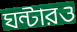
ঘন্টারও